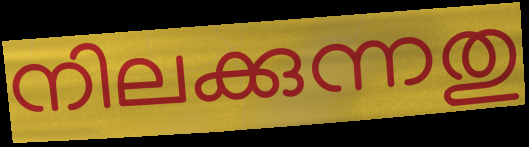
നിലക്കുന്നതു